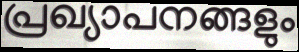
പ്രഖ്യാപനങ്ങളും